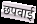
छपवाई